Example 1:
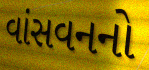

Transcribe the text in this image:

વાંસવનનો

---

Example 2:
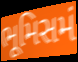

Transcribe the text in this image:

ભૂમિસમં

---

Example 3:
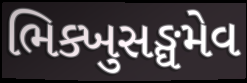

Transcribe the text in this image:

ભિક્ખુસઙ્ઘમેવ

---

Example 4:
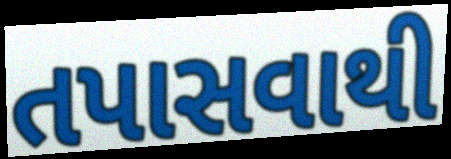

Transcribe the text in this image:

તપાસવાથી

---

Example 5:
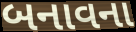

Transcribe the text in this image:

બનાવના